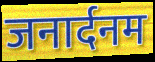
जनार्दनम